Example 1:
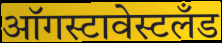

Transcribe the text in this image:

ऑगस्टावेस्टलँड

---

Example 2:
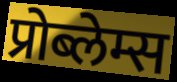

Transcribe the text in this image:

प्रोब्लेम्स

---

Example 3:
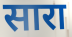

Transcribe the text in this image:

सारा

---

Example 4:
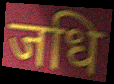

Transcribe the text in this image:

जधि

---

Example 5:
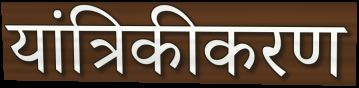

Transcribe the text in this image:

यांत्रिकीकरण